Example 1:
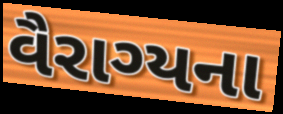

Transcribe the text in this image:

વૈરાગ્યના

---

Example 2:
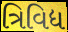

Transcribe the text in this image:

ત્રિવિદ્ય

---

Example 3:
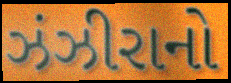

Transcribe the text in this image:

ઝંઝીરાનો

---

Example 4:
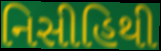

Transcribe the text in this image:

નિસીહિથી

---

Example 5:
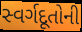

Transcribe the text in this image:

સ્વર્ગદૂતોની